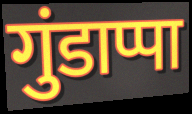
गुंडाप्पा